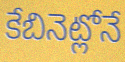
కేబినెట్లోనే